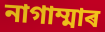
নাগাম্মাৰ